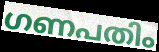
ഗണപതിം